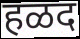
हळद